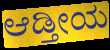
ಆಡ್ತೀಯ